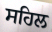
ਸਹਿਲ